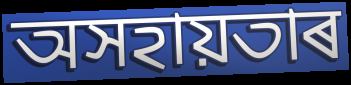
অসহায়তাৰ